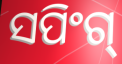
ସପିଂଗ୍